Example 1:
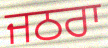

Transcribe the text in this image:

ਜਠਰਾ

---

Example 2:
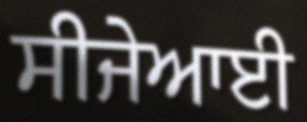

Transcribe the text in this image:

ਸੀਜੇਆਈ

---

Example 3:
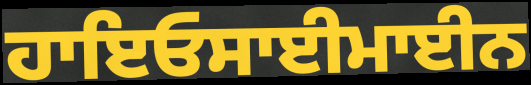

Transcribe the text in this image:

ਹਾਇਓਸਾਈਮਾਈਨ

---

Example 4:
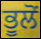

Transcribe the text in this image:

ਭੂਲੋਂ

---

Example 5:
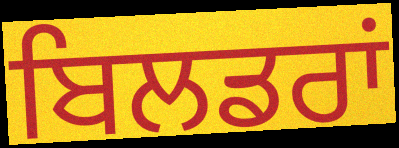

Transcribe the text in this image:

ਬਿਲਡਰਾਂ